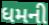
ધમની